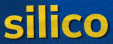
silico